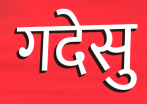
गदेसु